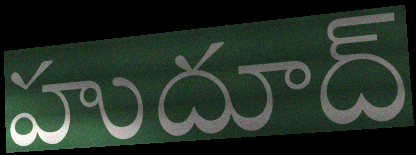
హుదూద్